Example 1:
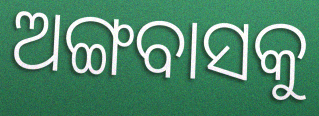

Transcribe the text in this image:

ଅଙ୍ଗବାସକୁ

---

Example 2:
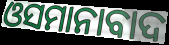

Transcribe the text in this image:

ଓସମାନାବାଦ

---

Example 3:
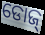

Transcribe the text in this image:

ଡୋଜ୍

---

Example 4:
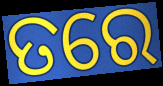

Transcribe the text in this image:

ତରେ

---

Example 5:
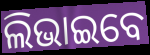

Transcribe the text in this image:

ଲିଭାଇବେ